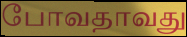
போவதாவது